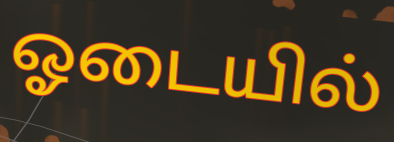
ஓடையில்